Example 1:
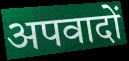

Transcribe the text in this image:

अपवादों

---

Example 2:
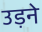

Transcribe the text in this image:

उड़ने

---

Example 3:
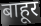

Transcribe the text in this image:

बाहूर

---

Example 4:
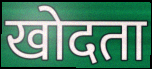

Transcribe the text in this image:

खोदता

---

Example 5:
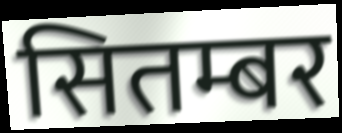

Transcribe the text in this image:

सितम्‍बर